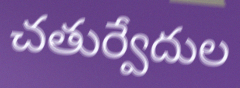
చతుర్వేదుల